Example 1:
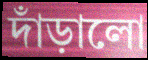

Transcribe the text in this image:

দাঁড়ালো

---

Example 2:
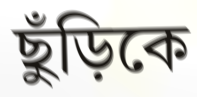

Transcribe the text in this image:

ছুঁড়িকে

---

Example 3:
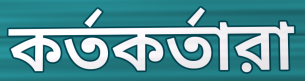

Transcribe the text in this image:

কর্তকর্তারা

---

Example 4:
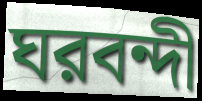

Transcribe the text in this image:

ঘরবন্দী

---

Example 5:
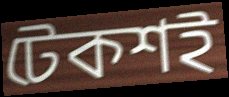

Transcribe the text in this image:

টেকশই